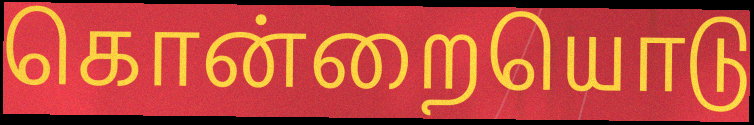
கொன்றையொடு